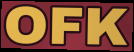
OFK